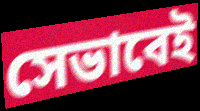
সেভাবেই